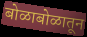
बोळाबोळातून